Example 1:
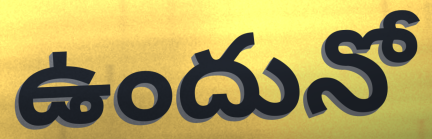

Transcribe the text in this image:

ఉందునో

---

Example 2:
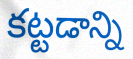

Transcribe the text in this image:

కట్టడాన్ని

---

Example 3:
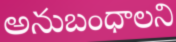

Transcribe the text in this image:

అనుబంధాలని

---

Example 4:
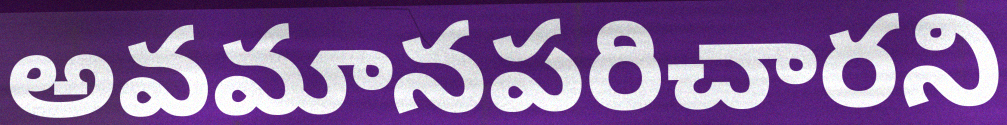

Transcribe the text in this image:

అవమానపరిచారని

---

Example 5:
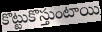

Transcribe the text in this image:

కొట్టుకొస్తుంటాయి